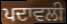
ਪਦਾਵਲੀ